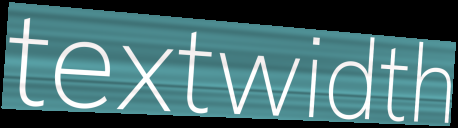
textwidth